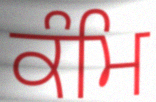
ਕੰਮਿ